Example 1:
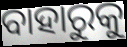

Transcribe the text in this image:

ବାହାରୁକୁ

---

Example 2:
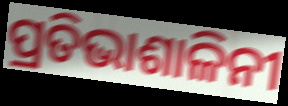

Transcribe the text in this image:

ପ୍ରତିଭାଶାଳିନୀ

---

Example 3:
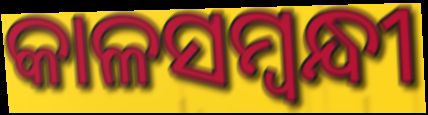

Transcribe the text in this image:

କାଳସମ୍ଵନ୍ଧୀ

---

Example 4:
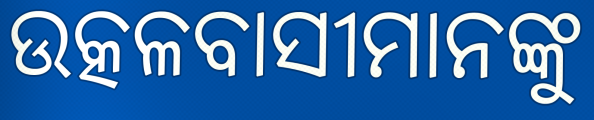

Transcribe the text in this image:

ଉତ୍କଳବାସୀମାନଙ୍କୁ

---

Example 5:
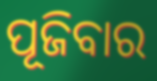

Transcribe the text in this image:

ପୂଜିବାର